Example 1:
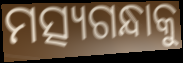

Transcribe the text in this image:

ମତ୍ସ୍ୟଗନ୍ଧାକୁ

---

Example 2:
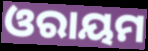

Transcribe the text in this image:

ଓରାୟମ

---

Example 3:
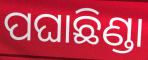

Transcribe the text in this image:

ପଘାଛିଣ୍ଡା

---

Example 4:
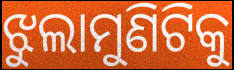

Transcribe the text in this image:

ଝୁଲାମୁଣିଟିକୁ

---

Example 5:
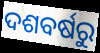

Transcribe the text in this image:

ଦଶବର୍ଷରୁ